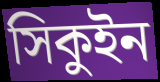
সিকুইন